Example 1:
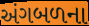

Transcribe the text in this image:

અંગબળના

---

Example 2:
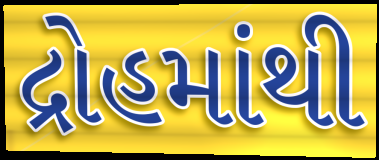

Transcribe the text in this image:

દ્રોહમાંથી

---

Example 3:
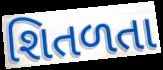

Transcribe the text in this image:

શિતળતા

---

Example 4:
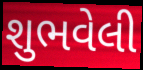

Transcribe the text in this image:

શુભવેલી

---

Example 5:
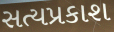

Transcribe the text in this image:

સત્યપ્રકાશ